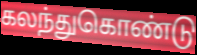
கலந்துகொண்டு